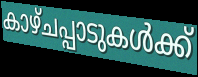
കാഴ്ചപ്പാടുകൾക്ക്